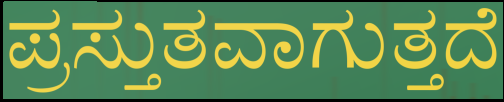
ಪ್ರಸ್ತುತವಾಗುತ್ತದೆ